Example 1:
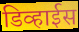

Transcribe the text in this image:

डिव्हाईस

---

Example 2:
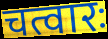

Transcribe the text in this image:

चत्वारः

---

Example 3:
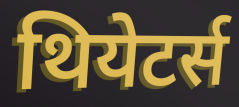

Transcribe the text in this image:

थियेटर्स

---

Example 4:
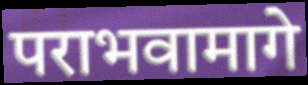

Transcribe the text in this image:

पराभवामागे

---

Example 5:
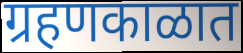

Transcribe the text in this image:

ग्रहणकाळात